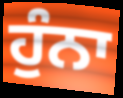
ਹੁੰਨਾ